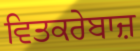
ਵਿਤਕਰੇਬਾਜ਼